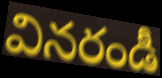
వినరండీ